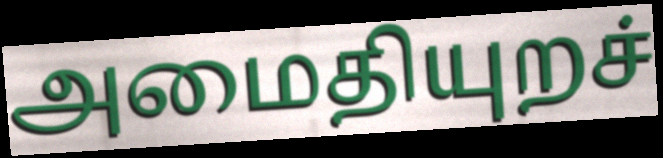
அமைதியுறச்